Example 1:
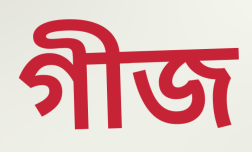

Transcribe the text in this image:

গীজ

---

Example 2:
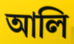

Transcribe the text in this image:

আলি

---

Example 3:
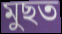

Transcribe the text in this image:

মুছত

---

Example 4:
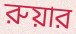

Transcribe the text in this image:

রুয়ার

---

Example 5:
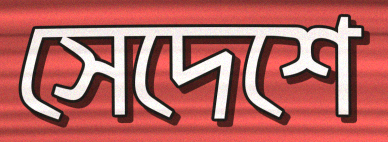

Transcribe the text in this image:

সেদেশে